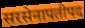
सरसेनापतीपद